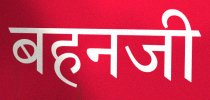
बहनजी